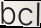
bcl